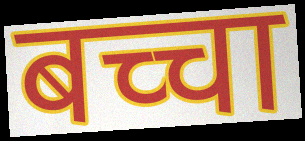
बच्‍चा